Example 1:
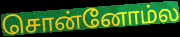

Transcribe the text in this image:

சொன்னோம்ல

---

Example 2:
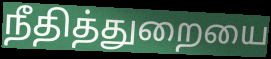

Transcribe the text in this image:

நீதித்துறையை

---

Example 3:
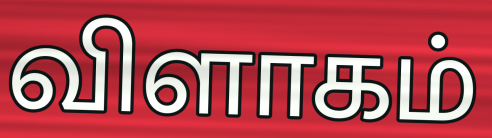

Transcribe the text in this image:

விளாகம்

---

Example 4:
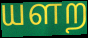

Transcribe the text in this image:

யளற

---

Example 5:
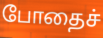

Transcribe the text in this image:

போதைச்